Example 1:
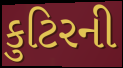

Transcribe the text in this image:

કુટિરની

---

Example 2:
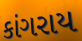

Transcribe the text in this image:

કાંગરાય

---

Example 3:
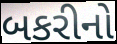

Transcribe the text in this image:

બકરીનો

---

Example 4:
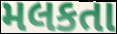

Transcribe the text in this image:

મલકતા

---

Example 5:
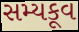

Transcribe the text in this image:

સમ્યકૂવ